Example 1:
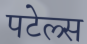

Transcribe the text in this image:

पटेल्स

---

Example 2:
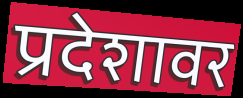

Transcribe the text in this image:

प्रदेशावर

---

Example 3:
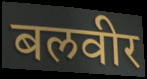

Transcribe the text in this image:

बलवीर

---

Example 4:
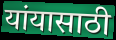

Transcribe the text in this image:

यांयासाठी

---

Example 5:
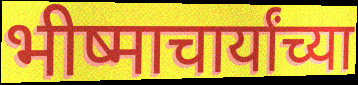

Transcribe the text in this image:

भीष्माचार्यांच्या